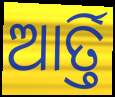
ଆର୍ତ୍ତି